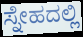
ಸ್ನೇಹದಲ್ಲಿ